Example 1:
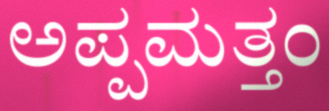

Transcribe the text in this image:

ಅಪ್ಪಮತ್ತಂ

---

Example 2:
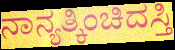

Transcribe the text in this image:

ನಾನ್ಯತ್ಕಿಂಚಿದಸ್ತಿ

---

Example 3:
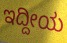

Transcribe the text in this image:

ಇದ್ದೀಯ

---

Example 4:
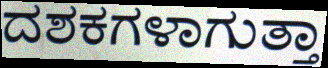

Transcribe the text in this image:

ದಶಕಗಳಾಗುತ್ತಾ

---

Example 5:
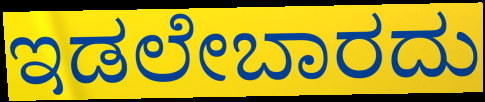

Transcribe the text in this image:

ಇಡಲೇಬಾರದು